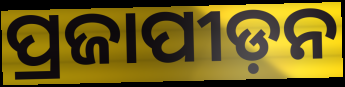
ପ୍ରଜାପୀଡ଼ନ